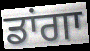
ਡਾਂਗਾ